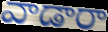
వాడారా